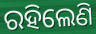
ରହିଲେଣି